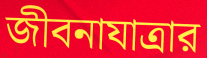
জীবনাযাত্রার